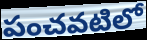
పంచవటిలో